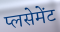
प्लसेमेंट